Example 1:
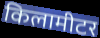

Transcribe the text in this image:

किलामीटर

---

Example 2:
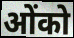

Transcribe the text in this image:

ओंको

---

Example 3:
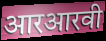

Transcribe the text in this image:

आरआरवी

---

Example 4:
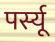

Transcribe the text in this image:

पर्स्यू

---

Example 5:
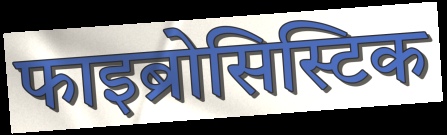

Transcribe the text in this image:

फाइब्रोसिस्टिक